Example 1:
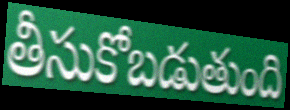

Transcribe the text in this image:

తీసుకోబడుతుంది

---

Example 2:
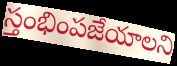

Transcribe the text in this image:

స్తంభింపజేయాలని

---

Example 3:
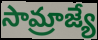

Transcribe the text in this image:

సామ్రాజ్యే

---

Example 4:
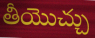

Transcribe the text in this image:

తీయొచ్చు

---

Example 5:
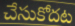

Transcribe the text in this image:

చేసుకోదట